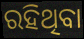
ରହିଥିବା